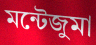
মন্টেজুমা